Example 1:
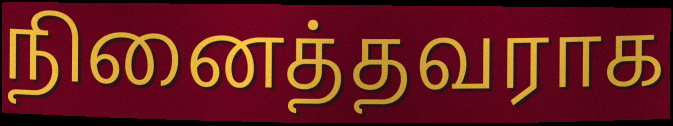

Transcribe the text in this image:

நினைத்தவராக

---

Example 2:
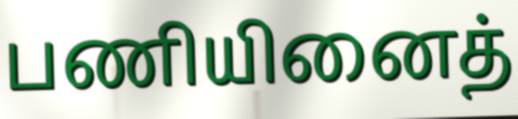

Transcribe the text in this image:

பணியினைத்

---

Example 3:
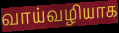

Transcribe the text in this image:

வாய்வழியாக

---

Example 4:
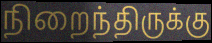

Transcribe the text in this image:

நிறைந்திருக்கு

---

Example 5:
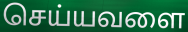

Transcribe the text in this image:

செய்யவளை